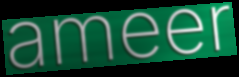
ameer